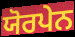
ਯੋਰਪੇਨ